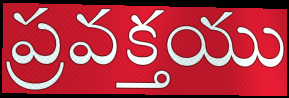
ప్రవక్తయు